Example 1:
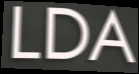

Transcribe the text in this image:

LDA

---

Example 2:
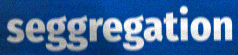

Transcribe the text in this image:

seggregation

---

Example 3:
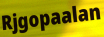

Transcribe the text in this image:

Rjgopaalan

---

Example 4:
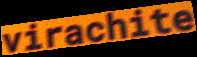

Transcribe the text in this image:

virachite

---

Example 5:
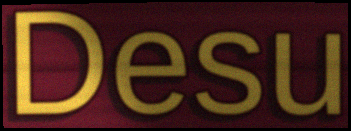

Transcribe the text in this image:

Desu